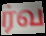
ர்வ